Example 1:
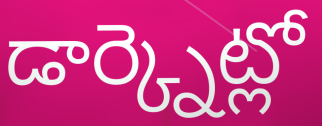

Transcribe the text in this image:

డార్క్నెట్లో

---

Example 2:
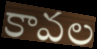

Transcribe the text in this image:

కావల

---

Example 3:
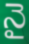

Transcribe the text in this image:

నై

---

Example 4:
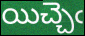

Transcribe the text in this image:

యిచ్చెఁ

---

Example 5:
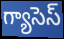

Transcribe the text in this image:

గ్యాసెస్